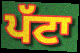
ਪੱਟਾ